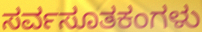
ಸರ್ವಸೂತಕಂಗಳು